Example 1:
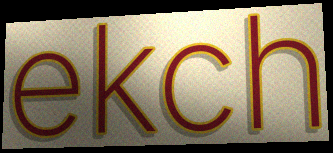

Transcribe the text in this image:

ekch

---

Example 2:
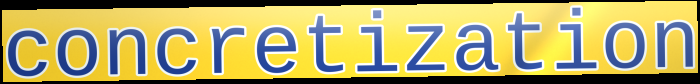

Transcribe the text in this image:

concretization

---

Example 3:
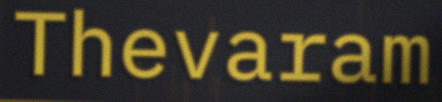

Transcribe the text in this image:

Thevaram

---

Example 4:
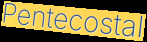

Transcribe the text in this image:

Pentecostal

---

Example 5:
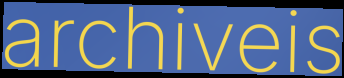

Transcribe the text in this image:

archiveis